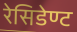
रेसिडेण्ट